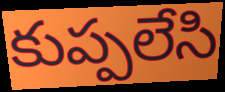
కుప్పలేసి